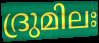
ദ്രുമിലഃ